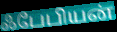
ஃபேபியன்